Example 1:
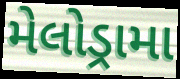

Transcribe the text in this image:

મેલોડ્રામા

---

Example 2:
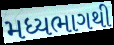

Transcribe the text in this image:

મધ્યભાગથી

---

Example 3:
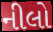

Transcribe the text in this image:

નીલો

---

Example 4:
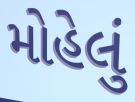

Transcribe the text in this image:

મોહેલું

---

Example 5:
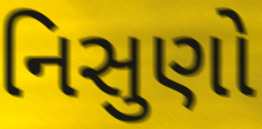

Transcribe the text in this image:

નિસુણો